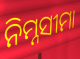
ନିମ୍ନସୀମା